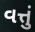
વત્તું